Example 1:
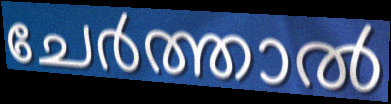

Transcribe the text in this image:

ചേർത്താൽ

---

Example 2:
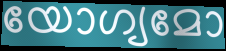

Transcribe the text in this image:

യോഗ്യമോ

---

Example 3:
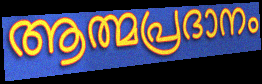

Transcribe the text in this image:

ആത്മപ്രദാനം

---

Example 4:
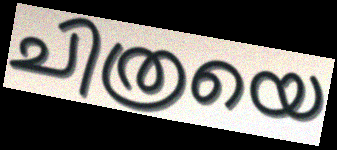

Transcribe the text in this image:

ചിത്രയെ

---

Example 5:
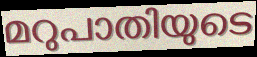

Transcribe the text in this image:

മറുപാതിയുടെ